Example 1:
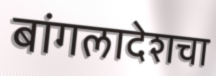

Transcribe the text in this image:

बांगलादेशचा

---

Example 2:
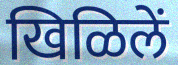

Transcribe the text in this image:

खिळिलें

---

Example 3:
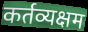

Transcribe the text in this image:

कर्तव्यक्षम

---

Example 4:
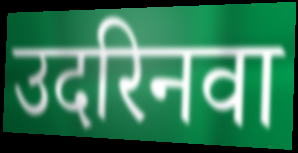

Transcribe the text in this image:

उदरिनवा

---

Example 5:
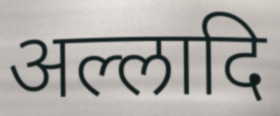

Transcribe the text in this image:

अल्लादि